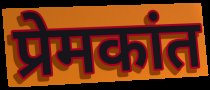
प्रेमकांत